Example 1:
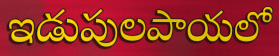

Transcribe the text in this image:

ఇడుపులపాయలో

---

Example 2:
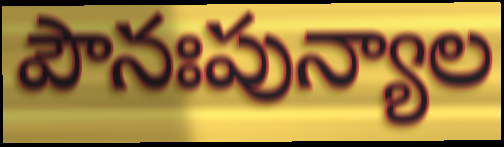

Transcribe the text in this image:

పౌనఃపున్యాల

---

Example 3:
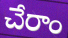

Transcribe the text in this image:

చేరాం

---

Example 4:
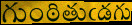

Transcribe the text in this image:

గుంఠితుఁడగు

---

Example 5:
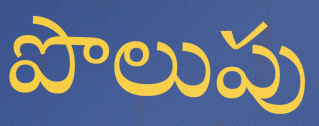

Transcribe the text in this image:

పొలుపు